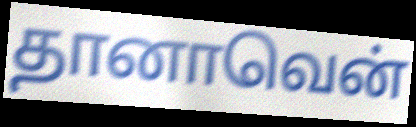
தானாவென்